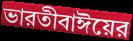
ভারতীবাঈয়ের